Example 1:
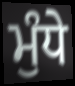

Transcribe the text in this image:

ਮੁੰਧੇ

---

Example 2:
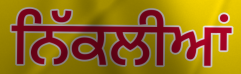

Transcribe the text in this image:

ਨਿੱਕਲੀਆਂ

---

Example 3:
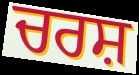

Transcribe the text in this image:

ਚਰਸ਼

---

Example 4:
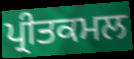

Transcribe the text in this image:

ਪ੍ਰੀਤਕਮਲ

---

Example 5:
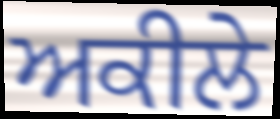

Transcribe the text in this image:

ਅਕੀਲੇ